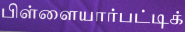
பிள்ளையார்பட்டிக்